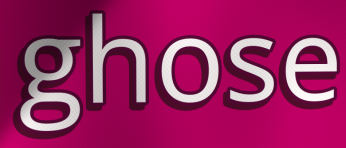
ghose